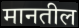
मानतील